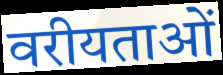
वरीयताओं